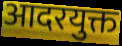
आदरयुक्त